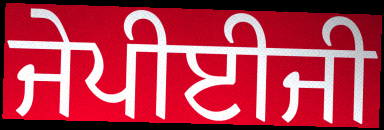
ਜੇਪੀਈਜੀ